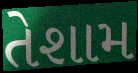
તેશામ